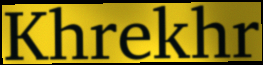
Khrekhr